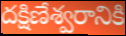
దక్షిణేశ్వరానికి